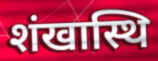
शंखास्थि